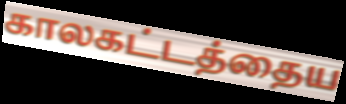
காலகட்டத்தைய